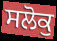
ਸਲੋਕੁ